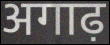
अगाढ़